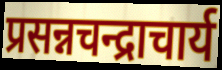
प्रसन्नचन्द्राचार्य